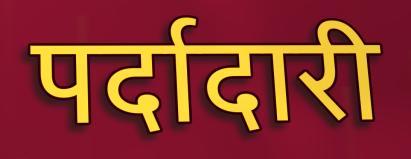
पर्दादारी